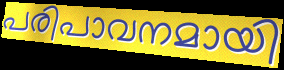
പരിപാവനമായി